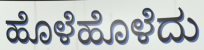
ಹೊಳೆಹೊಳೆದು